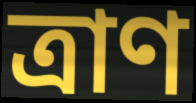
ত্ৰাণ